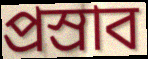
প্রস্রাব